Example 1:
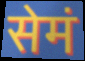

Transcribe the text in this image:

सेमं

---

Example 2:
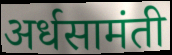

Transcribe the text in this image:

अर्धसामंती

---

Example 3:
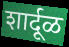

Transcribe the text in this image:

शार्दूळ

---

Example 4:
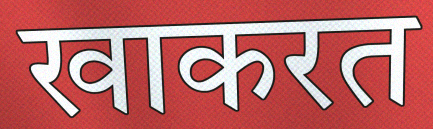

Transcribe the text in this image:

खाकरत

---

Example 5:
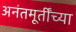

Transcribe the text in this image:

अनंतमूर्तींच्या